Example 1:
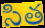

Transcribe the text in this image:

సిత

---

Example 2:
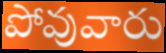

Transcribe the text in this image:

పోవువారు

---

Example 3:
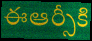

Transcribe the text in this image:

ఈఆర్సీకి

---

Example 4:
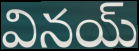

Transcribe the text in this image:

వినయ్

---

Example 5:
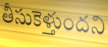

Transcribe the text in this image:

తీసుకెళ్తుందని